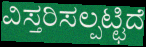
ವಿಸ್ತರಿಸಲ್ಪಟ್ಟಿದೆ